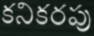
కనికరపు